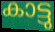
കാട്ടു